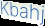
Kbahj